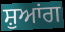
ਸ਼ੁਆਂਗ